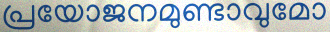
പ്രയോജനമുണ്ടാവുമോ